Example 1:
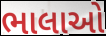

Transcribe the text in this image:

ભાલાઓ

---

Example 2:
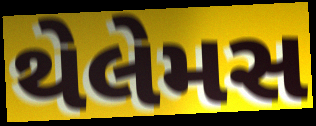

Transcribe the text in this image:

થેલેમસ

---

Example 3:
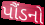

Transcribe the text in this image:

પૌંડનો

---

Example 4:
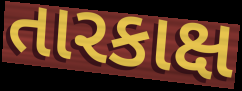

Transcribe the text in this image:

તારકાક્ષ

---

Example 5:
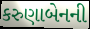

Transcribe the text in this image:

કરુણાબેનની